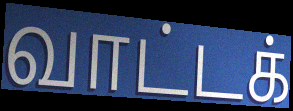
வாட்டக்